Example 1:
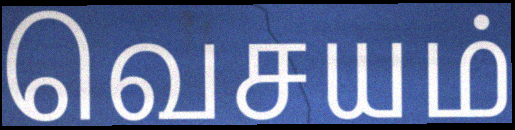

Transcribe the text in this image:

வெசயம்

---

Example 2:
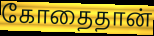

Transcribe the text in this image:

கோதைதான்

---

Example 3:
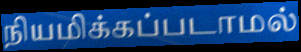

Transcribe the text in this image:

நியமிக்கப்படாமல்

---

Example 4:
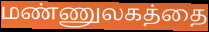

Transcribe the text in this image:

மண்ணுலகத்தை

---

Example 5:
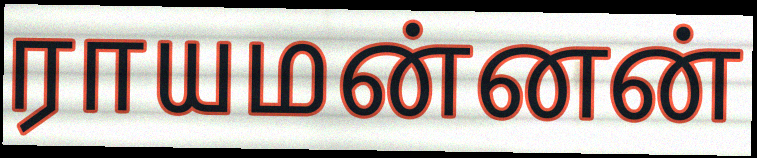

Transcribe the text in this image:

ராயமன்னன்